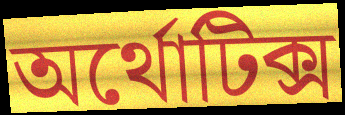
অর্থোটিক্স